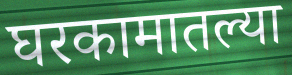
घरकामातल्या